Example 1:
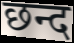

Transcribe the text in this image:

छन्‍द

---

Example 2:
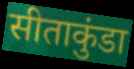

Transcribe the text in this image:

सीताकुंडा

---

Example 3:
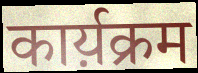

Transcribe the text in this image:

कार्य़क्रम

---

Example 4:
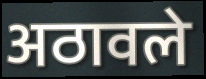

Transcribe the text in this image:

अठावले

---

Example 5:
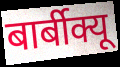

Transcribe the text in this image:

बार्बीक्यू